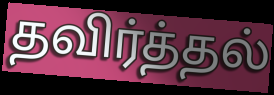
தவிர்த்தல்